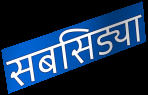
सबसिड्या